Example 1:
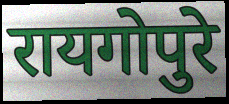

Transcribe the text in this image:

रायगोपुरे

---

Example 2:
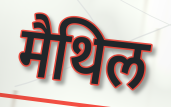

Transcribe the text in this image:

मैथिल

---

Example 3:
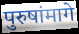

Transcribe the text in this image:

पुरुषांमागे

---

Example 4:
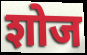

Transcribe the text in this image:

शोज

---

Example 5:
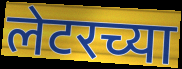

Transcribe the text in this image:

लेटरच्या